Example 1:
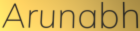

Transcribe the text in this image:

Arunabh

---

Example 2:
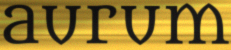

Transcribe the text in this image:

aurum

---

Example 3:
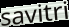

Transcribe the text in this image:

savitri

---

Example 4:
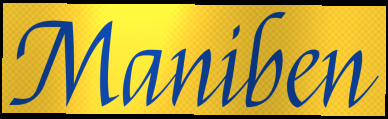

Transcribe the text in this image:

Maniben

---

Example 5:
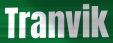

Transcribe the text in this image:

Tranvik